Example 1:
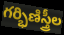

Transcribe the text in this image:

గర్భిణిస్త్రీల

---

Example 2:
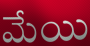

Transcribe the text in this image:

మేయి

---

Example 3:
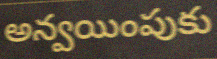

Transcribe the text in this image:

అన్వయింపుకు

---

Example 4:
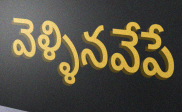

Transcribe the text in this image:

వెళ్ళినవేపే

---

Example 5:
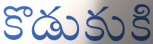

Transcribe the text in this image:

కొడుకుకి